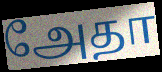
அேதா